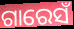
ଗାରେସଁ